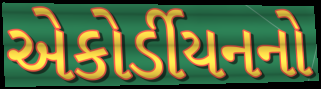
એકોર્ડીયનનો